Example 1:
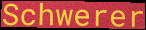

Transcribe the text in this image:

Schwerer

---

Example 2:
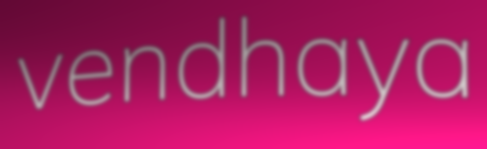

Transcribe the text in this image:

vendhaya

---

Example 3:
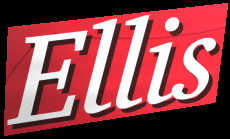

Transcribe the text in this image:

Ellis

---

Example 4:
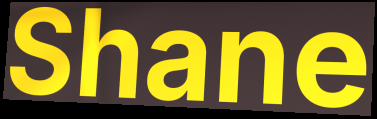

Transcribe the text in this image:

Shane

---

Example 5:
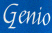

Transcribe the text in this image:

Genio